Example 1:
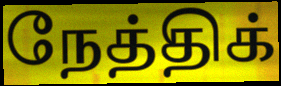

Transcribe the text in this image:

நேத்திக்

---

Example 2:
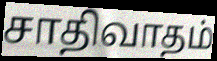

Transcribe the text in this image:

சாதிவாதம்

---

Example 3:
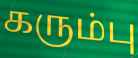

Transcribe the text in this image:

கரும்பு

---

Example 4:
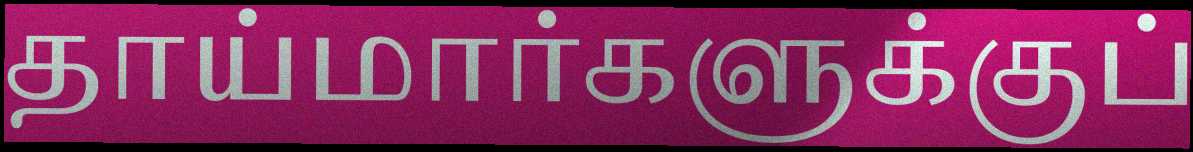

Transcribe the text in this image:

தாய்மார்களுக்குப்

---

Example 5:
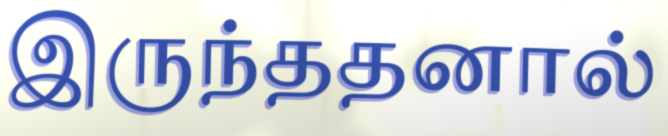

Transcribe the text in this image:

இருந்ததனால்